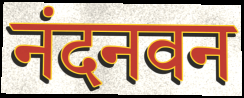
नंदनवन